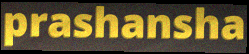
prashansha